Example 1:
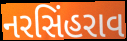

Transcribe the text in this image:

નરસિંહરાવ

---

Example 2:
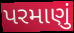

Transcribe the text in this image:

પરમાણું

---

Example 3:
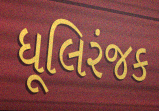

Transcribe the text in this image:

ધૂલિરંજક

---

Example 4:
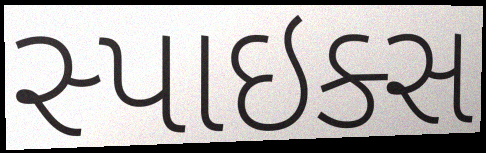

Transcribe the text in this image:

સ્પાઇક્સ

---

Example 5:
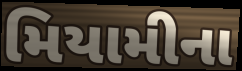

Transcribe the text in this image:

મિયામીના